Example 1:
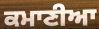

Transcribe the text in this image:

ਕਮਾਣੀਆ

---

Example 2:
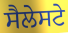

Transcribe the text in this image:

ਸੈਲੇਸਟੇ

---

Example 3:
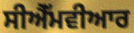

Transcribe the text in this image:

ਸੀਐੱਮਵੀਆਰ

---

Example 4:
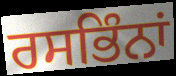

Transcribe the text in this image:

ਰਸਭਿੰਨਾਂ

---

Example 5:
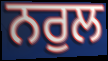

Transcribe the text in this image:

ਨਰੁਲ